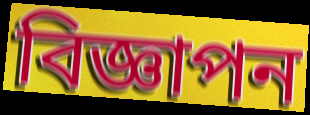
বিজ্ঞাপন